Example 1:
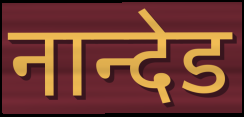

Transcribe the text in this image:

नान्देड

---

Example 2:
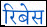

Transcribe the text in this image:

रिबेस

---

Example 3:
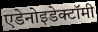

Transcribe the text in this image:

एडेनोइडेक्टॉमी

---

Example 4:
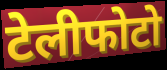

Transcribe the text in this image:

टेलीफोटो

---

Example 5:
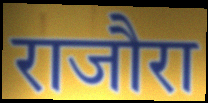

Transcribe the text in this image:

राजौरा